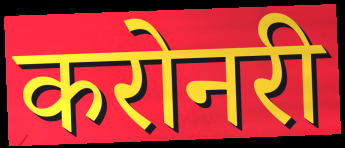
करोनरी